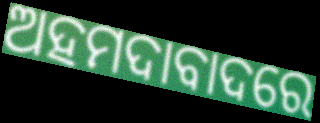
ଅହମଦାବାଦରେ